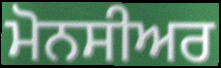
ਮੋਨਸੀਅਰ